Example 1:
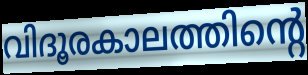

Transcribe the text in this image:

വിദൂരകാലത്തിന്റെ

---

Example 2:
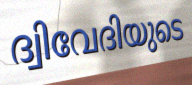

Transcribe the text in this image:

ദ്വിവേദിയുടെ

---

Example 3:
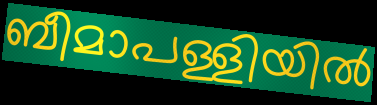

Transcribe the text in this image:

ബീമാപള്ളിയിൽ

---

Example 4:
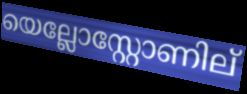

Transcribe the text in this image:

യെല്ലോസ്റ്റോണില്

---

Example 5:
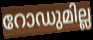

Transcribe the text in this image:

റോഡുമില്ല